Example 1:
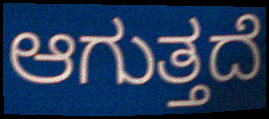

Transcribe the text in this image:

ಆಗುತ್ತದೆ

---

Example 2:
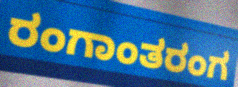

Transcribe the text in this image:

ರಂಗಾಂತರಂಗ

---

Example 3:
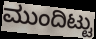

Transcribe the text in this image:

ಮುಂದಿಟ್ಟು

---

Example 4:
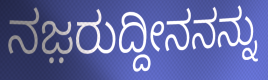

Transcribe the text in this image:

ನಜ಼ರುದ್ದೀನನನ್ನು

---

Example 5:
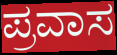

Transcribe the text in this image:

ಪ್ರವಾಸ